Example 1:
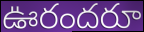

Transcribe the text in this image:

ఊరందరూ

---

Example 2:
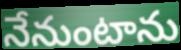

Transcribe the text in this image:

నేనుంటాను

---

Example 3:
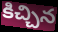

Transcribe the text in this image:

కిచ్చిన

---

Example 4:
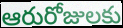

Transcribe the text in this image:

ఆరురోజులకు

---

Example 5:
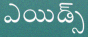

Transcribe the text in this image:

ఎయిడ్స్